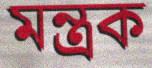
মন্ত্রক